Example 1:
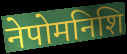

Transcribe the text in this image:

नेपोमनिशि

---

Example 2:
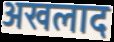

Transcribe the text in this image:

अखलाद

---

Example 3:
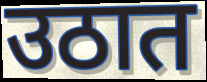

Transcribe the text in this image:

उठात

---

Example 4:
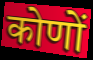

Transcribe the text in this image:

कोणों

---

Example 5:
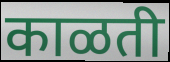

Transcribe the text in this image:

काळती